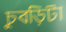
চুবড়িটা